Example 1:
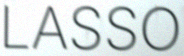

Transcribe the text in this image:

LASSO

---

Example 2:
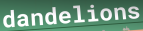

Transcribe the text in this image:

dandelions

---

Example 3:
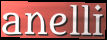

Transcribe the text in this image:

anelli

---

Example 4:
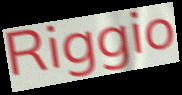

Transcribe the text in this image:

Riggio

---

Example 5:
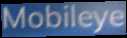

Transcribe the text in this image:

Mobileye